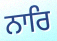
ਨਾਰਿ